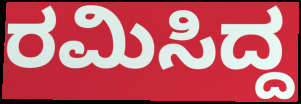
ರಮಿಸಿದ್ದ